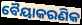
ବୈୟାକରଣିକ